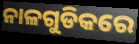
ନାଳଗୁଡିକରେ